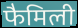
फैमिली